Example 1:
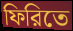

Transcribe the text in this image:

ফিরিতে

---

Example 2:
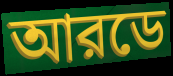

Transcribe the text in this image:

আরডে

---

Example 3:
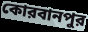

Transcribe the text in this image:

কোরবানপুর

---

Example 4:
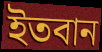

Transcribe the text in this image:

ইতবান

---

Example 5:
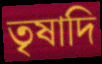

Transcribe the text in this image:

তৃষাদি